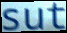
sut